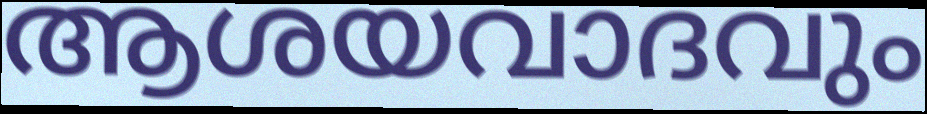
ആശയവാദവും